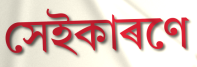
সেইকাৰণে